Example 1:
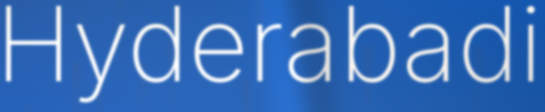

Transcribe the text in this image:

Hyderabadi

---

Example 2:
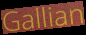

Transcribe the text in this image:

Gallian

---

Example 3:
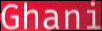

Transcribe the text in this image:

Ghani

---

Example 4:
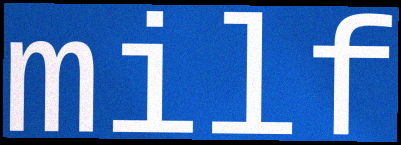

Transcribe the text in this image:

milf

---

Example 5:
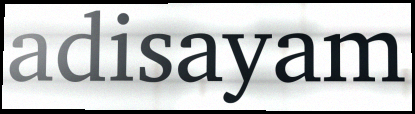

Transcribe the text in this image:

adisayam